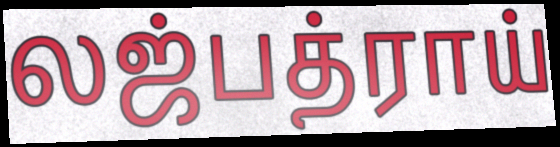
லஜ்பத்ராய்